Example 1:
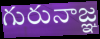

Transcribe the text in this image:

గురునాజ్ఞ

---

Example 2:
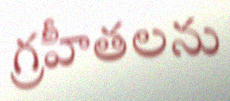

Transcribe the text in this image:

గ్రహీతలను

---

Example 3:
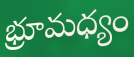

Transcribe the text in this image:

భ్రూమధ్యం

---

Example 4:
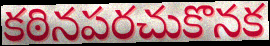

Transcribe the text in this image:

కఠినపరచుకొనక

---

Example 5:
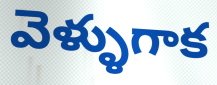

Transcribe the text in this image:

వెళ్ళుగాక